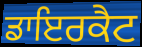
ਡਾਇਰਕੈਟ